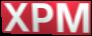
XPM